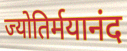
ज्योतिर्मयानंद